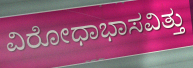
ವಿರೋಧಾಭಾಸವಿತ್ತು